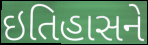
ઇતિહાસને